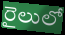
రైలులో